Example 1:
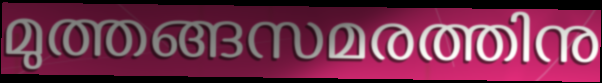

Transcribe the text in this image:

മുത്തങ്ങസമരത്തിനു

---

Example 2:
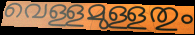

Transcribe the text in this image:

വെള്ളമുള്ളതും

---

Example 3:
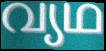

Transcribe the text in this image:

വ്യഥ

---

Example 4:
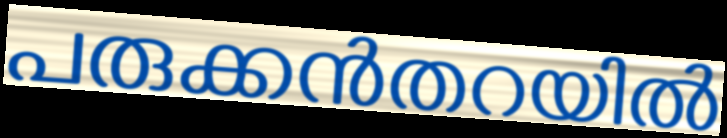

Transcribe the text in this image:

പരുക്കൻതറയിൽ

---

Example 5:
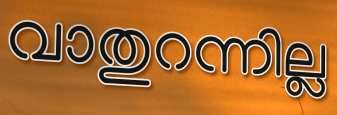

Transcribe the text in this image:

വാതുറന്നില്ല